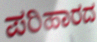
ಪರಿಹಾರದ